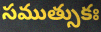
సముత్సుకః